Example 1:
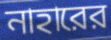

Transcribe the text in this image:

নাহারের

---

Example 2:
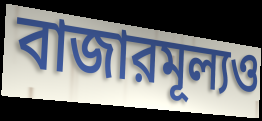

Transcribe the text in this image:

বাজারমূল্যও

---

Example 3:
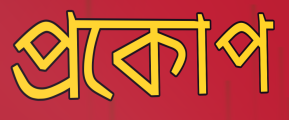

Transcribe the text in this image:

প্রকোপ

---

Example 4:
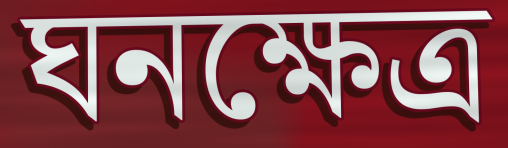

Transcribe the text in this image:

ঘনক্ষেত্র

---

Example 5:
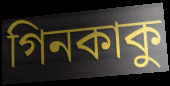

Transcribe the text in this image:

গিনকাকু